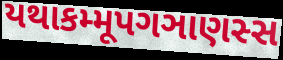
યથાકમ્મૂપગઞાણસ્સ